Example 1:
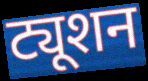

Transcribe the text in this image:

ट्यूशन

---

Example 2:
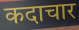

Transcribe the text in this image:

कदाचार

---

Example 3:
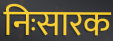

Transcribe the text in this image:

निःसारक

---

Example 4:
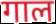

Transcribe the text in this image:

गाल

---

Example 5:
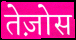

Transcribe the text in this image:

तेज़ोस